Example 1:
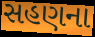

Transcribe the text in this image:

સહણના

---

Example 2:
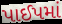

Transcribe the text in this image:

પાઈપમાં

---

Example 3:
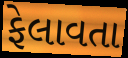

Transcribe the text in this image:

ફેલાવતા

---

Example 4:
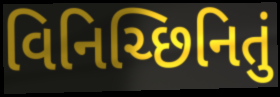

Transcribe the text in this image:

વિનિચ્છિનિતું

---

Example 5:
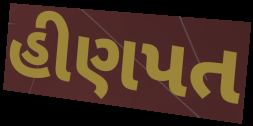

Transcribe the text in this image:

હીણપત